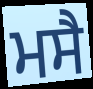
ਮਸੈ